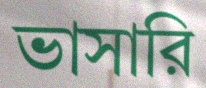
ভাসারি